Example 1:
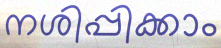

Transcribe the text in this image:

നശിപ്പിക്കാം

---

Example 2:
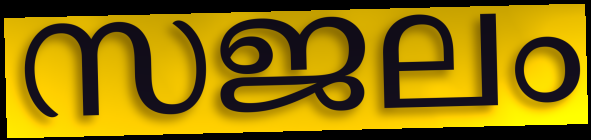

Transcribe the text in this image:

സജലം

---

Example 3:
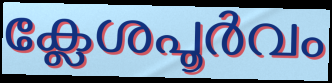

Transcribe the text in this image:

ക്ലേശപൂർവം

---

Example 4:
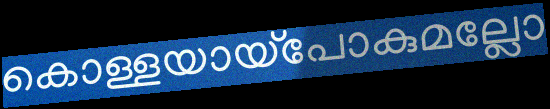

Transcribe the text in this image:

കൊള്ളയായ്പോകുമല്ലോ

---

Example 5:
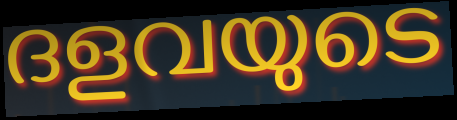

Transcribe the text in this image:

ദളവയുടെ